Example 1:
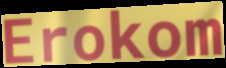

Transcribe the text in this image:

Erokom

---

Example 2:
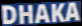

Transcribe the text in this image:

DHAKA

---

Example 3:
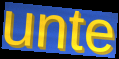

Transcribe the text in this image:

unte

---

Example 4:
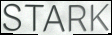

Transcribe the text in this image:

STARK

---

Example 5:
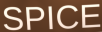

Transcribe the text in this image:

SPICE